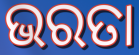
ଭରତା